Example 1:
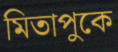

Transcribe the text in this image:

মিতাপুকে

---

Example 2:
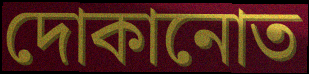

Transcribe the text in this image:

দোকানোত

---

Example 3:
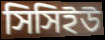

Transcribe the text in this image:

সিসিইউ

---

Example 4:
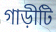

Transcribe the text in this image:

গাড়ীটি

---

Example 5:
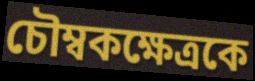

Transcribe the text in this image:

চৌম্বকক্ষেত্রকে